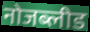
नोजब्लीड